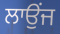
ਲਾਉਂਜ